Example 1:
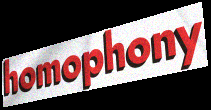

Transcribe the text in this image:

homophony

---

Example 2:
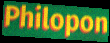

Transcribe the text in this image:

Philopon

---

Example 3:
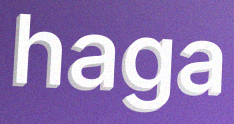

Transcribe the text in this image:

haga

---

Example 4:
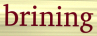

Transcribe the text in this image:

brining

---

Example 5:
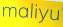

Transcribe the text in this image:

maliyu